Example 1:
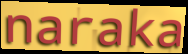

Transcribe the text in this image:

naraka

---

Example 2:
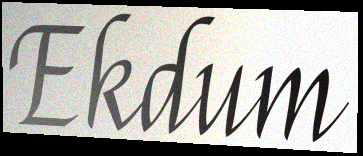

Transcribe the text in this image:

Ekdum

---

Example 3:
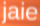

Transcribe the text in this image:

jaie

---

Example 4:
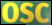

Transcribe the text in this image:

OSC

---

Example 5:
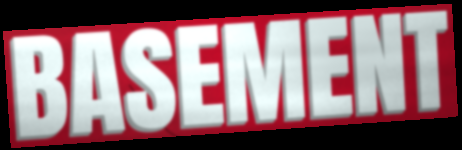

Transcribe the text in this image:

BASEMENT